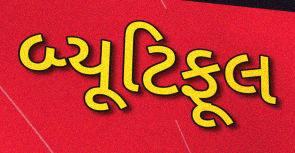
બ્યૂટિફૂલ